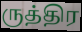
ருத்திர